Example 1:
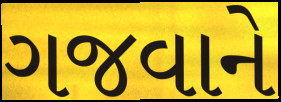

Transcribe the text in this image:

ગજવાને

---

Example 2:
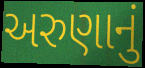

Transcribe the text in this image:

અરુણાનું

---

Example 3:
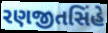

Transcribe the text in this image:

રણજીતસિંહે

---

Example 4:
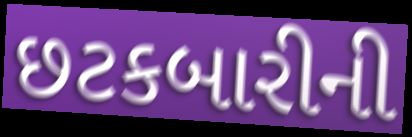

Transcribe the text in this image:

છટકબારીની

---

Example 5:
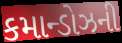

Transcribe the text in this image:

કમાન્ડોઝની